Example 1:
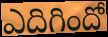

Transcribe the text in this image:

ఎదిగిందో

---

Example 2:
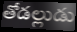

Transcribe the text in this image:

తోడల్లుడు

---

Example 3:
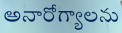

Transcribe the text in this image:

అనారోగ్యాలను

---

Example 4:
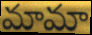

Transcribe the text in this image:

మామా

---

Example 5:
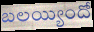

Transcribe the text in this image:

బలయ్యిందో